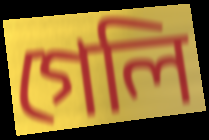
গেলি